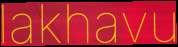
lakhavu